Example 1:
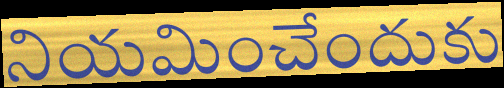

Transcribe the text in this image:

నియమించేందుకు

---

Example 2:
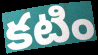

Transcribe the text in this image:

కటిం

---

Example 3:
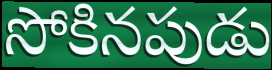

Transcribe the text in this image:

సోకినపుడు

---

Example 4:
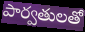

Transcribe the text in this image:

పార్వతులతో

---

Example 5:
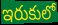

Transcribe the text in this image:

ఇరుకులో